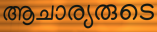
ആചാര്യരുടെ